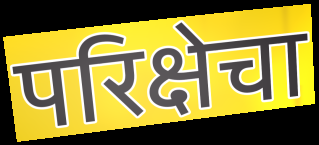
परिक्षेचा